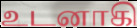
உடனாகி